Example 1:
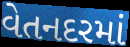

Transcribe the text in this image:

વેતનદરમાં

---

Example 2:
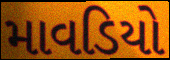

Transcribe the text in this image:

માવડિયો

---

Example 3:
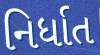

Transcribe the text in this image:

નિર્ધાત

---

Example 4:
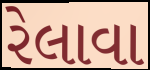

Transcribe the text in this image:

રેલાવા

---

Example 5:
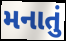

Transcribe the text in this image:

મનાતું